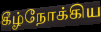
கீழ்நோக்கிய